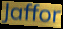
Jaffor